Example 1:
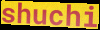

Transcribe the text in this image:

shuchi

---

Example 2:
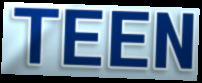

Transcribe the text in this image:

TEEN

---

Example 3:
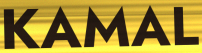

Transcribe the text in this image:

KAMAL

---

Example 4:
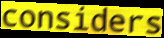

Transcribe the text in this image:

considers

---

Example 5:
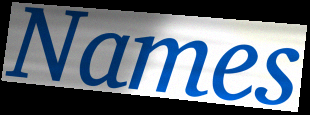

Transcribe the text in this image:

Names